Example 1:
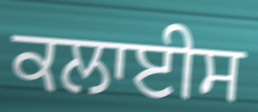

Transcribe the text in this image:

ਕਲਾਈਸ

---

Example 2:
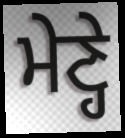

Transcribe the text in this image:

ਮੇਣ੍ਹੇ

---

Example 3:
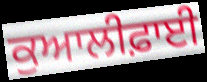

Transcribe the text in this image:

ਕੁਆਲੀਫ਼ਾਈ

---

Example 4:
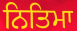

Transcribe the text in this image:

ਨਿਤਿਮਾ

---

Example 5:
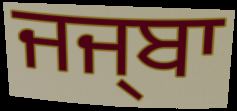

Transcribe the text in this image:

ਜਜ੍ਬਾ